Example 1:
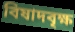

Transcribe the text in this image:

বিষাদবৃক্ষ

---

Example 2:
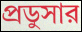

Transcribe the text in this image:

প্রডুসার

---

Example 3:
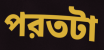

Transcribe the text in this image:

পরতটা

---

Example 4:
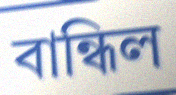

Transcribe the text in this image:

বান্ধিল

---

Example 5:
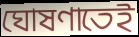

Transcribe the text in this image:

ঘোষণাতেই